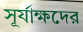
সূর্যাক্ষদের